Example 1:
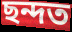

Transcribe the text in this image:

ছন্দত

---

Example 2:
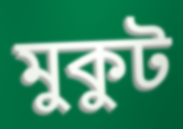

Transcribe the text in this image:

মুকুট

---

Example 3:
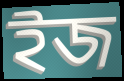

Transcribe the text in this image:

ইজ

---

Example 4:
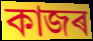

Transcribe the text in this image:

কাজৰ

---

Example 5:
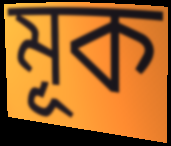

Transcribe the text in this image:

মূক